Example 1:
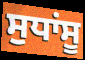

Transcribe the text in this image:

ਸੁਧਾਂਸੂ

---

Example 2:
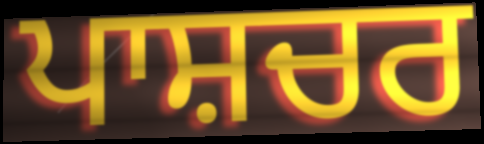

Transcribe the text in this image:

ਪਾਸ਼ਚਰ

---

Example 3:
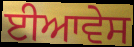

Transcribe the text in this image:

ਈਆਵੇਸ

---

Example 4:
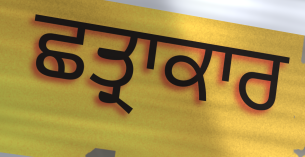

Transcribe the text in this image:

ਛਤ੍ਰਾਕਾਰ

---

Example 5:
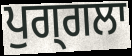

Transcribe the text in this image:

ਪੁਗ੍ਗਲਾ